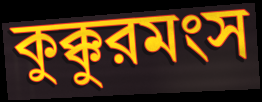
কুক্কুরমংস